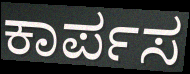
ಕಾರ್ಪಸ